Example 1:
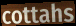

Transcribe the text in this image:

cottahs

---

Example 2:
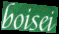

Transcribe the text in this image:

boisei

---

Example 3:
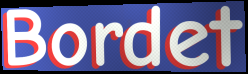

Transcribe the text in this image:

Bordet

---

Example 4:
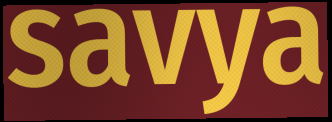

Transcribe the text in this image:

savya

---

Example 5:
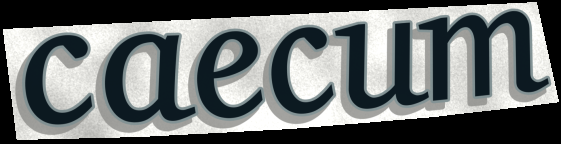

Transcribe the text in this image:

caecum